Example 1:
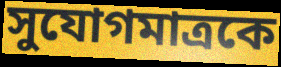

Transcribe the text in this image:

সুযোগমাত্রকে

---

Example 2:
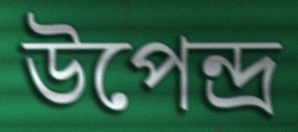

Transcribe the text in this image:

উপেন্দ্র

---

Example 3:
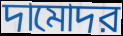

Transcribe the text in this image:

দামোদর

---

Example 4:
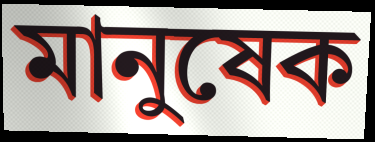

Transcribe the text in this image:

মানুষেক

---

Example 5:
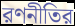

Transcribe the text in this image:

রণনীতির